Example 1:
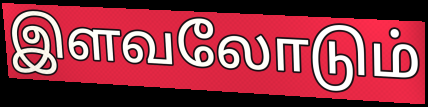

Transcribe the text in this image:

இளவலோடும்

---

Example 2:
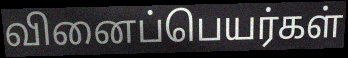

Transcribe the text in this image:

வினைப்பெயர்கள்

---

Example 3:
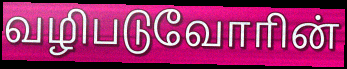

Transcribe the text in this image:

வழிபடுவோரின்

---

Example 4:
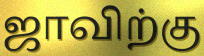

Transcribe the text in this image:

ஜாவிற்கு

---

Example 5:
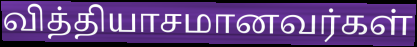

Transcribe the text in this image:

வித்தியாசமானவர்கள்